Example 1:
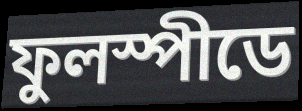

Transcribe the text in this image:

ফুলস্পীডে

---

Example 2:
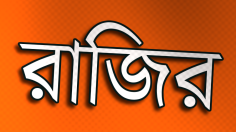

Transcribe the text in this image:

রাজির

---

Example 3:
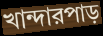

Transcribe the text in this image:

খান্দারপাড়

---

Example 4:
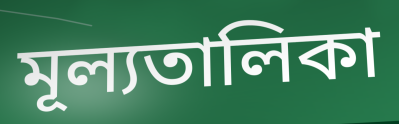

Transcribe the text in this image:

মূল্যতালিকা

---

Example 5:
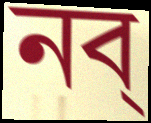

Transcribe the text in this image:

নব্